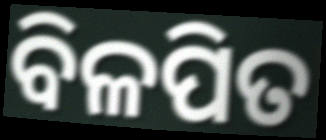
ବିଳପିତ